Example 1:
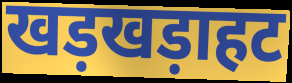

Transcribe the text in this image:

खड़खड़ाहट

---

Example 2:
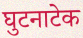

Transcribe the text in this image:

घुटनाटेक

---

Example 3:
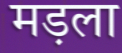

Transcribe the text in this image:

मड़ला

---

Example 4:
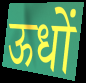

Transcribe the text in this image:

ऊधों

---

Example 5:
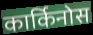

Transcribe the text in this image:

कार्किनोस